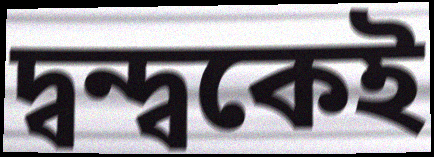
দ্বন্দ্বকেই